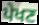
ਪੇਖਣ